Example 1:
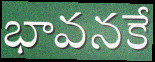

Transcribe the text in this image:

భావనకే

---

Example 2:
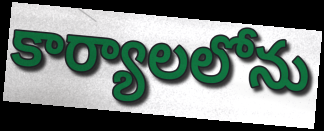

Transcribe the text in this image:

కార్యాలలోను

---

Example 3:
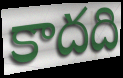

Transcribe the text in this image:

కాదది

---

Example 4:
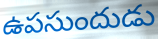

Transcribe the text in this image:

ఉపసుందుడు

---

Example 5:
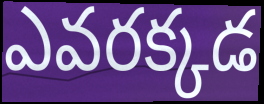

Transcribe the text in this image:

ఎవరక్కడ